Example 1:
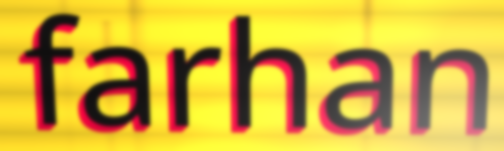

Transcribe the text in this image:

farhan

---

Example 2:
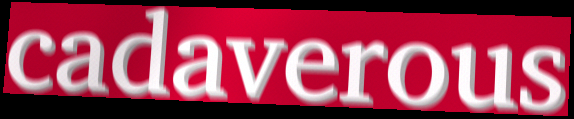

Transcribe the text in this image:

cadaverous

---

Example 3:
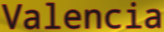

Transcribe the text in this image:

Valencia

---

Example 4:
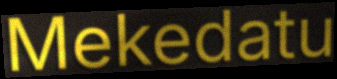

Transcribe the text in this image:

Mekedatu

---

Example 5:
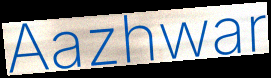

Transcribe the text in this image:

Aazhwar